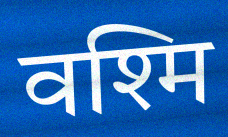
वश्मि